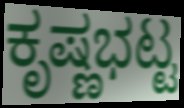
ಕೃಷ್ಣಭಟ್ಟ